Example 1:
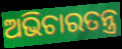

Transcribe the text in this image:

ଅଭିଚାରତନ୍ତ୍ର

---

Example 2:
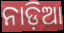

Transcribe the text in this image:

ନାଡ଼ିଆ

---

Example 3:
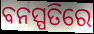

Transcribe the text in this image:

ବନସ୍ପତିରେ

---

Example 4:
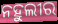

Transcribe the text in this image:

ନହୁଲୀର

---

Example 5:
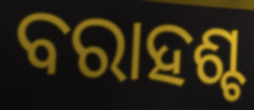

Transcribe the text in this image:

ବରାହଶ୍ଚ